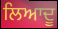
ਲਿਆਦੂ